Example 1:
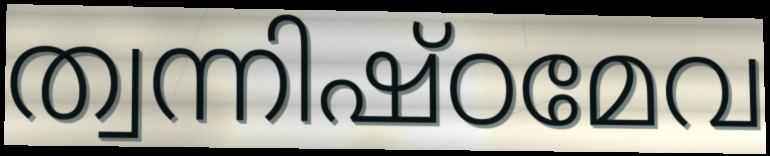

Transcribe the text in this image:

ത്വന്നിഷ്ഠമേവ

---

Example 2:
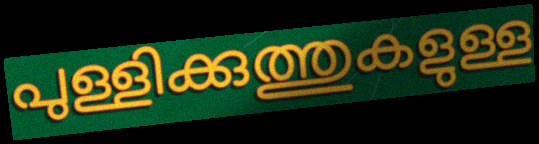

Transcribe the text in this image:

പുള്ളിക്കുത്തുകളുള്ള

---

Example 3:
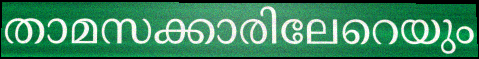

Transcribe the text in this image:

താമസക്കാരിലേറെയും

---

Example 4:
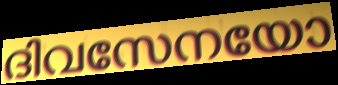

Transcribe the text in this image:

ദിവസേനയോ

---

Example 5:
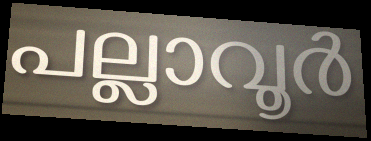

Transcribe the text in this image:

പല്ലാവൂർ